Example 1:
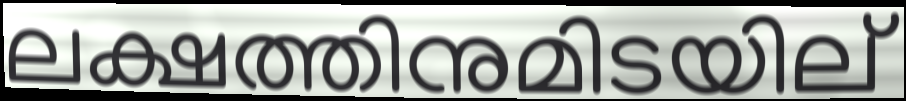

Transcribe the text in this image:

ലക്ഷത്തിനുമിടയില്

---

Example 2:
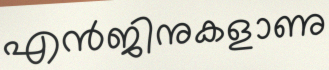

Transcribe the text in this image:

എൻജിനുകളാണു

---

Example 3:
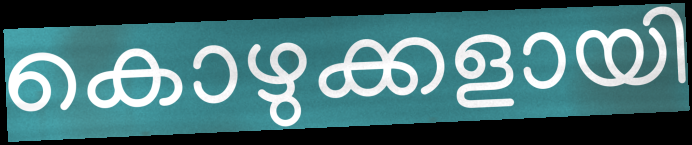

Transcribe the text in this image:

കൊഴുക്കളായി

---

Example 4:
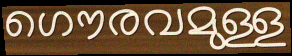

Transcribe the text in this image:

ഗൌരവമുള്ള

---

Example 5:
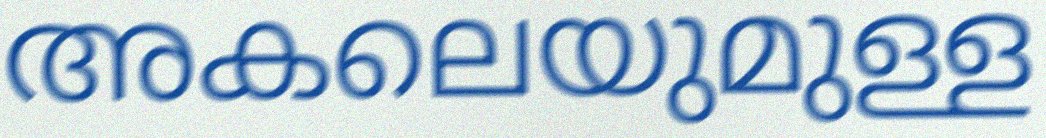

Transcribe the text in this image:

അകലെയുമുള്ള